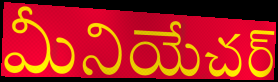
మీనియేచర్